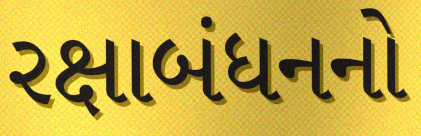
રક્ષાબંધનનો